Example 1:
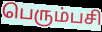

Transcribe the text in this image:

பெரும்பசி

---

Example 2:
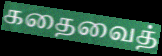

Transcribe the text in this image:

கதைவைத்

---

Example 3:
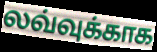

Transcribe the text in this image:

லவ்வுக்காக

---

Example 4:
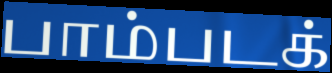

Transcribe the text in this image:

பாம்படக்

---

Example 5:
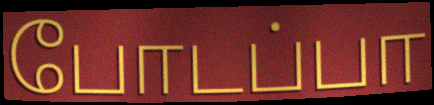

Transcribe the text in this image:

போடப்பா